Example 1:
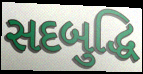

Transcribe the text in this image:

સદબુદ્ધિ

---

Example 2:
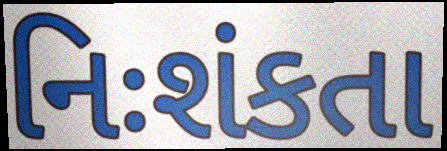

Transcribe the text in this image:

નિઃશંકતા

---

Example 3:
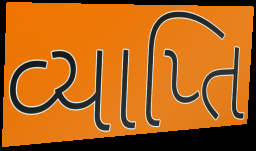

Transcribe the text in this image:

વ્યાપ્તિ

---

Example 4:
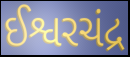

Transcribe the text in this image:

ઈશ્વરચંદ્ર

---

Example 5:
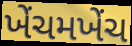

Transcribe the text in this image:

ખેંચમખેંચ